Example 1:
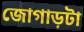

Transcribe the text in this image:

জোগাড়টা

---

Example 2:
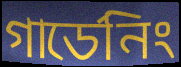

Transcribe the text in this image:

গার্ডেনিং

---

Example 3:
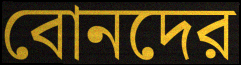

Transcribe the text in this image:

বোনদের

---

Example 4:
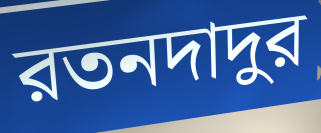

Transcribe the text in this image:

রতনদাদুর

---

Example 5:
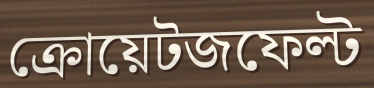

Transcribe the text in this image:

ক্রোয়েটজফেল্ট